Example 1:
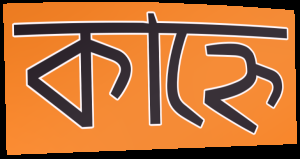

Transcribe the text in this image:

কাহ্নে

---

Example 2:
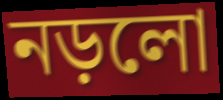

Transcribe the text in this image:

নড়লো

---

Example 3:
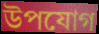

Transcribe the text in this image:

উপযোগ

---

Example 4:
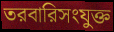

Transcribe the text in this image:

তরবারিসংযুক্ত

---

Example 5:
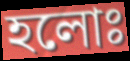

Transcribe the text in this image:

হলোঃ